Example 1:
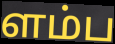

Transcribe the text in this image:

ளம்ப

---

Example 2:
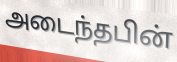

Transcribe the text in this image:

அடைந்தபின்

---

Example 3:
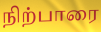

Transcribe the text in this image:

நிற்பாரை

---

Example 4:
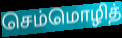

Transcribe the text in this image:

செம்மொழித்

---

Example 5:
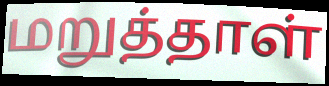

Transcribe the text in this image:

மறுத்தாள்